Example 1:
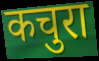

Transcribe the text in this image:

कचुरा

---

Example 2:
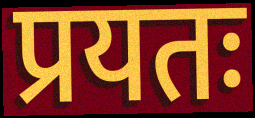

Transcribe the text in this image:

प्रयतः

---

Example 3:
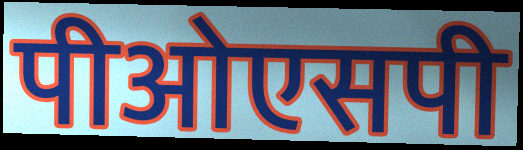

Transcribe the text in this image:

पीओएसपी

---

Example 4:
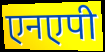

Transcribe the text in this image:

एनएपी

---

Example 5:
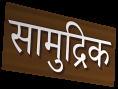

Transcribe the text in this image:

सामुद्रिक